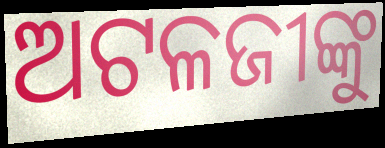
ଅଟଳଜୀଙ୍କୁ